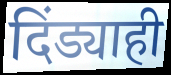
दिंड्याही